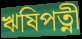
ঋষিপত্নী